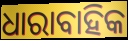
ଧାରାବାହିକ